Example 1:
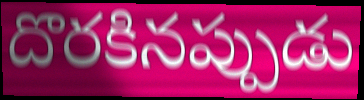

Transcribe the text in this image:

దొరకినప్పుడు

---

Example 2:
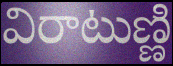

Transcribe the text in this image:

విరాటుణ్ణి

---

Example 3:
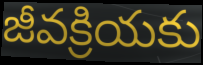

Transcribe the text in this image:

జీవక్రియకు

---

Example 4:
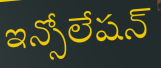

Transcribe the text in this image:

ఇన్సోలేషన్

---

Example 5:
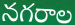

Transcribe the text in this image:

నగరాల